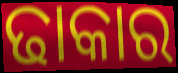
ଢାକାର